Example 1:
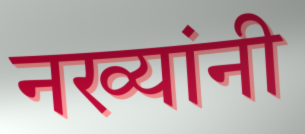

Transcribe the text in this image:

नख्यांनी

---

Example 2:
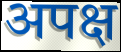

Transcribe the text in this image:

अपक्ष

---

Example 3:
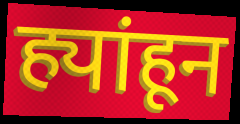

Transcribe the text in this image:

ह्यांहून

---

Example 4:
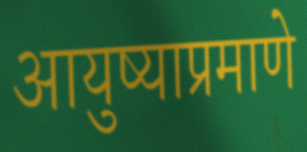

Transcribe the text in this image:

आयुष्याप्रमाणे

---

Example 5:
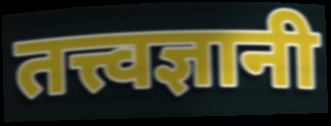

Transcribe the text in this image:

तत्त्वज्ञानी